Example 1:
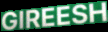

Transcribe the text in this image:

GIREESH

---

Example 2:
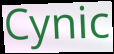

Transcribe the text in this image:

Cynic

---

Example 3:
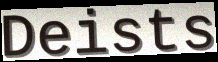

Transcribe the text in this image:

Deists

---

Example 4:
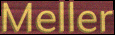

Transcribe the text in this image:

Meller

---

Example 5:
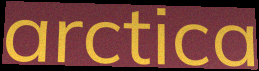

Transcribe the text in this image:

arctica